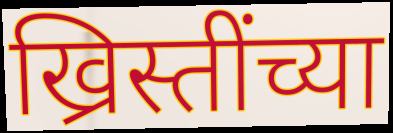
ख्रिस्तींच्या